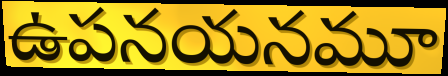
ఉపనయనమూ